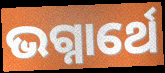
ଭଗ୍ନାର୍ଥେ